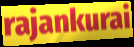
rajankurai